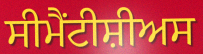
ਸੀਮੈਂਟੀਸ਼ੀਅਸ